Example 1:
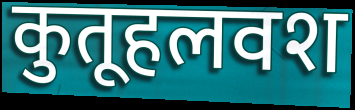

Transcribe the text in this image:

कुतूहलवश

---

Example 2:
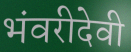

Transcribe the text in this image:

भंवरीदेवी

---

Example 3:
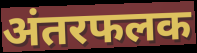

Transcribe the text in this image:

अंतरफलक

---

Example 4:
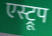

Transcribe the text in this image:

एस्ट्रूप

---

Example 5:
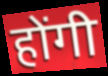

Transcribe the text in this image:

होंगी